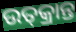
ଉତ୍‌କ୍ରାନ୍ତ